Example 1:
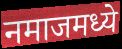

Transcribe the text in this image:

नमाजमध्ये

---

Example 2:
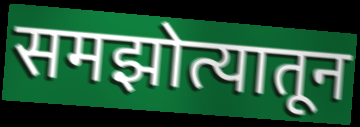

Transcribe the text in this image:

समझोत्यातून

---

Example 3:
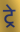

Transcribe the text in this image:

ट्रे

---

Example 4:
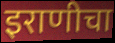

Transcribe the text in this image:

इराणीचा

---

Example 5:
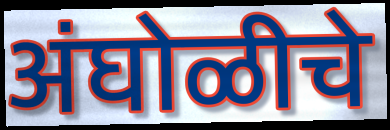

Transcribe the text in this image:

अंघोळीचे